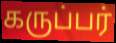
கருப்பர்